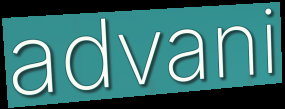
advani